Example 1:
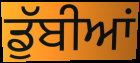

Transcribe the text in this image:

ਡੁੱਬੀਆਂ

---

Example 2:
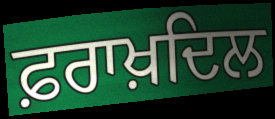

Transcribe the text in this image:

ਫ਼ਰਾਖ਼ਦਿਲ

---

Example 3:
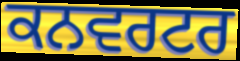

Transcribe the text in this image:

ਕਨਵਰਟਰ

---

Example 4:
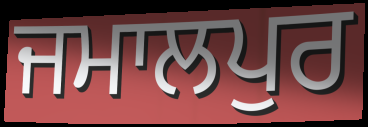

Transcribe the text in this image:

ਜਮਾਲਪੁਰ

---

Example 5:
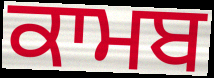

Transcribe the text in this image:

ਕਾਮਬ